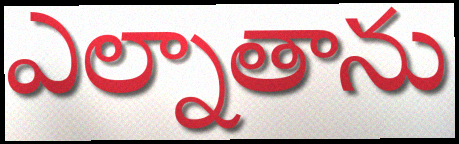
ఎల్నాతాను